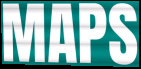
MAPS